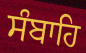
ਸੰਬਾਹਿ